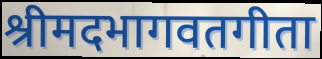
श्रीमदभागवतगीता